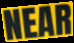
NEAR